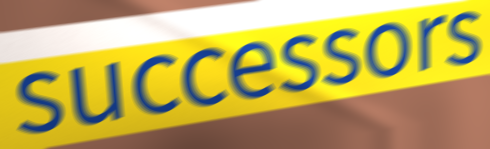
successors